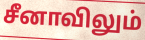
சீனாவிலும்